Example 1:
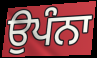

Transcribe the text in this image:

ਉਪੰਨਾ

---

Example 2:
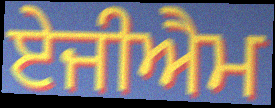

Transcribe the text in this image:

ਏਜੀਐਮ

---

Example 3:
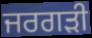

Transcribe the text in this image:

ਜਰਗੜੀ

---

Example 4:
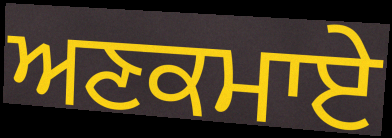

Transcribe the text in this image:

ਅਣਕਮਾਏ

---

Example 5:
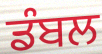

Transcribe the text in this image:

ਡੰਬਲ